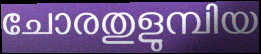
ചോരതുളുമ്പിയ